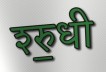
श्रु॒धी